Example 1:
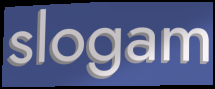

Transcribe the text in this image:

slogam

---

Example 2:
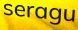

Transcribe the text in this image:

seragu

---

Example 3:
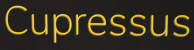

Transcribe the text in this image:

Cupressus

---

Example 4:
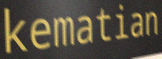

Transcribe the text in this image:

kematian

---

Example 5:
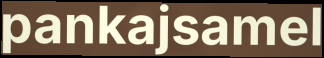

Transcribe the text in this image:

pankajsamel